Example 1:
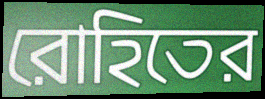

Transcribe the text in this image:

রোহিতের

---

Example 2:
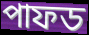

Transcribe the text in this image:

পাফড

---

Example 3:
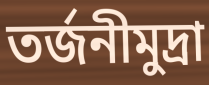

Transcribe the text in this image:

তর্জনীমুদ্রা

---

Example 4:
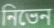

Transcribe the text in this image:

নিভেন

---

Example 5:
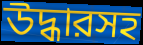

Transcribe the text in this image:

উদ্ধারসহ